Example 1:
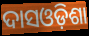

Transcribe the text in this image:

ଦାସଓଡ଼ିଶା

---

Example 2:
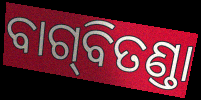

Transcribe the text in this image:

ବାଗ୍‍ବିତଣ୍ଡା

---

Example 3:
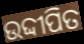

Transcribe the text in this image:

ଉଦ୍ଦୀପିତ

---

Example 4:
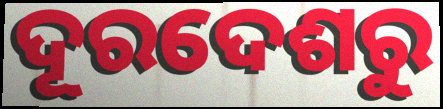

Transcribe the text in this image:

ଦୂରଦେଶରୁ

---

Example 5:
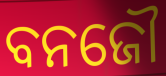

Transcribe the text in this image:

ବନଜୌ